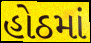
હોઠમાં